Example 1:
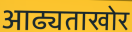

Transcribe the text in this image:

आढ्यताखोर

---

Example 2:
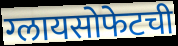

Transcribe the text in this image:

ग्लायसोफेटची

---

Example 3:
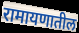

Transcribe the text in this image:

रामायणातील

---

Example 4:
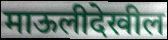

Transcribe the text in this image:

माऊलीदेखील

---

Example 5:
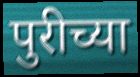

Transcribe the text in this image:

पुरीच्या